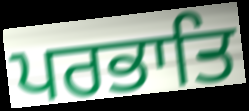
ਪਰਭਾਤਿ